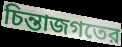
চিন্তাজগতের